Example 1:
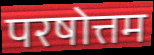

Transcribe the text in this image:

परषोत्तम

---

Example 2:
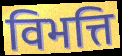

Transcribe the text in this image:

विभत्ति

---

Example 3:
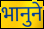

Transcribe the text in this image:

भानुने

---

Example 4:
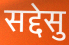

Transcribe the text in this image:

सद्देसु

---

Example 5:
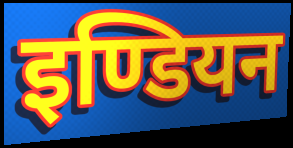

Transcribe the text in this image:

इण्डियन